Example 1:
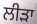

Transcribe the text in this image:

ਲੀੜਾ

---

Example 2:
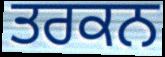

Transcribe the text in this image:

ਤਰਕਨ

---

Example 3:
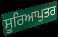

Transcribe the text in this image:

ਸੂਰਿਆਪੁਤਰ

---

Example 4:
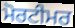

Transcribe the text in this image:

ਮੋਰਟੀਮਰ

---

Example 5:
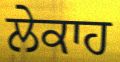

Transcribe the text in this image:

ਲੇਕਾਹ